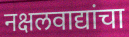
नक्षलवाद्यांचा